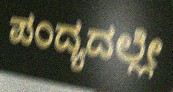
ಪಂದ್ಯದಲ್ಲೇ